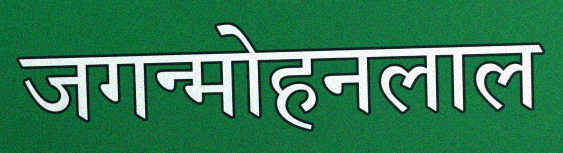
जगन्मोहनलाल